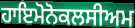
ਹਾਇਮੋਨੋਕਲਸੀਅਮ